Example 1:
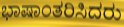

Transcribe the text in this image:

ಭಾಷಾಂತರಿಸಿದರು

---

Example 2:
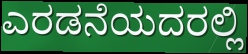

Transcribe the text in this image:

ಎರಡನೆಯದರಲ್ಲಿ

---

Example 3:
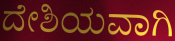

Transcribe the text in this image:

ದೇಶಿಯವಾಗಿ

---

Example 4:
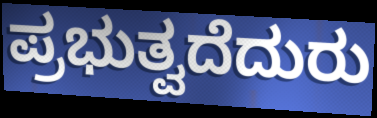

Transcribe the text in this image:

ಪ್ರಭುತ್ವದೆದುರು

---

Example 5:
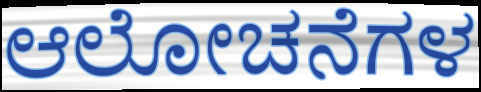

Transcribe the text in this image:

ಆಲೋಚನೆಗಳ